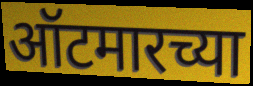
ऑटमारच्या